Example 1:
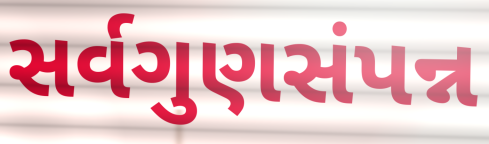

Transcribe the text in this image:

સર્વગુણસંપન્ન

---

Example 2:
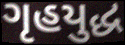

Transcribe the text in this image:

ગૃહયુદ્ધ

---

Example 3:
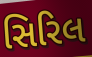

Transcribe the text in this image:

સિરિલ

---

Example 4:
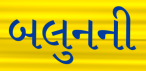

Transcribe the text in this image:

બલુનની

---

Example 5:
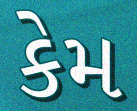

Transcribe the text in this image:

કેમ